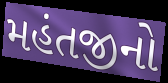
મહંતજીનો